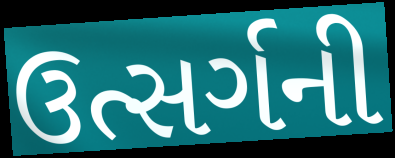
ઉત્સર્ગની